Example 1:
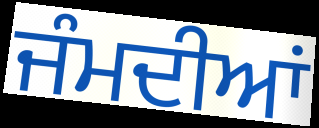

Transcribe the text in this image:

ਜੰਮਦੀਆਂ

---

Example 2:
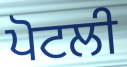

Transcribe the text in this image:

ਪੋਟਲੀ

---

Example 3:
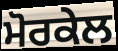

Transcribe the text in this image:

ਮੋਰਕੇਲ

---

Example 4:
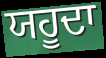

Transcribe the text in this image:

ਯਹੂਦਾ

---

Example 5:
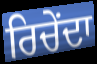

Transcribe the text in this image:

ਰਿਚੇਂਦਾ